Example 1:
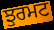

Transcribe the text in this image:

ਝੁਰਮਟ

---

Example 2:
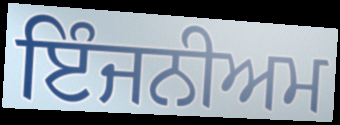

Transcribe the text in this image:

ਇੰਜਨੀਅਮ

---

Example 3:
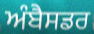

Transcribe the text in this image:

ਅੰਬੈਸਡਰ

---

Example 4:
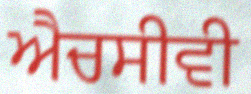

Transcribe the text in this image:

ਐਚਸੀਵੀ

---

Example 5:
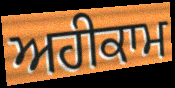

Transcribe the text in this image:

ਅਹੀਕਾਮ